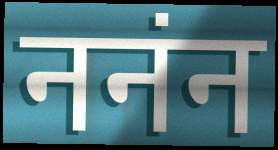
ननंन